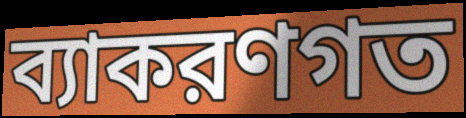
ব্যাকরণগত